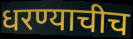
धरण्याचीच